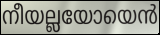
നീയല്ലയോയെൻ